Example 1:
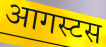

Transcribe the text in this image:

आगस्टस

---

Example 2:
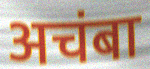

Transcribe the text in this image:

अचंबा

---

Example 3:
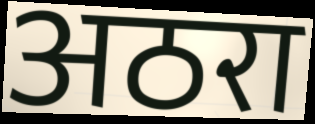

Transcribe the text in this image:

अठरा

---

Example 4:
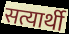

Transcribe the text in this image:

सत्यार्थी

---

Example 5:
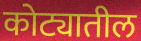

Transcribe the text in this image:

कोट्यातील